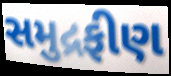
સમુદ્રફીણ